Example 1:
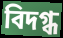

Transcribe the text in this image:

বিদগ্ধ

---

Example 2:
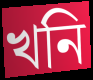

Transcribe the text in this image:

খনি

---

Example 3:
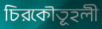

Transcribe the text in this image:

চিরকৌতূহলী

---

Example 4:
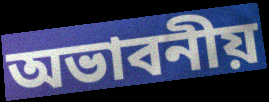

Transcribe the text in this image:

অভাবনীয়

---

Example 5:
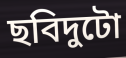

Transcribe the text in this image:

ছবিদুটো